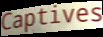
Captives